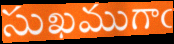
సుఖముగాఁ